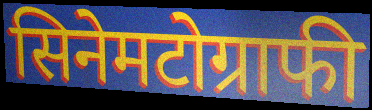
सिनेमटोग्राफी